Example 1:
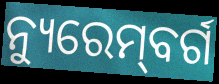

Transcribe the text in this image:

ନ୍ୟୁରେମ୍‌ବର୍ଗ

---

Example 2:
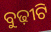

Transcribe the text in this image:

ବୁଢ଼ୀଟି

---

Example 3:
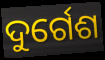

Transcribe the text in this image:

ଦୁର୍ଗେଶ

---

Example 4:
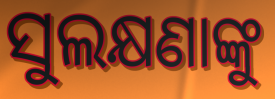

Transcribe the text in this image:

ସୁଲକ୍ଷଣାଙ୍କୁ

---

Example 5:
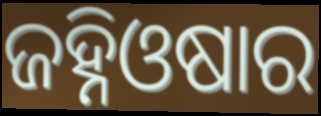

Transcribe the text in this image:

ଜହ୍ନିଓଷାର